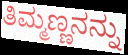
ತಿಮ್ಮಣ್ಣನನ್ನು